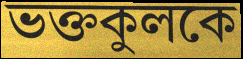
ভক্তকুলকে